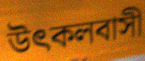
উৎকলবাসী